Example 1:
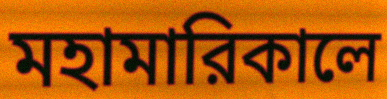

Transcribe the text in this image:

মহামারিকালে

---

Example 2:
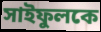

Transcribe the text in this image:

সাইফুলকে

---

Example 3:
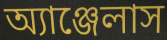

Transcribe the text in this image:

অ্যাঞ্জেলাস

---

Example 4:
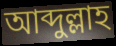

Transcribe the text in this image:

আব্দুল্লাহ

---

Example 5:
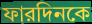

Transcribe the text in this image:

ফারদিনকে